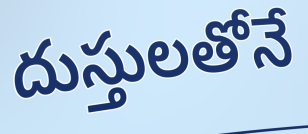
దుస్తులతోనే